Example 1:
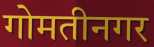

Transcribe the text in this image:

गोमतीनगर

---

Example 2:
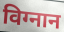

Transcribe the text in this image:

विग्नान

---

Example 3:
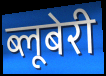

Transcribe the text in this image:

ब्लूबेरी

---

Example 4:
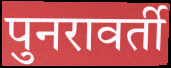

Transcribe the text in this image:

पुनरावर्ती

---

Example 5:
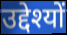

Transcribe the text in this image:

उद्देश्यों